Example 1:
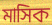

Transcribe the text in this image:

মাসিক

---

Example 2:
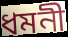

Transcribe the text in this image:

ধমনী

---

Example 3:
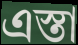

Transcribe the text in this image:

এস্তা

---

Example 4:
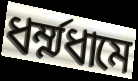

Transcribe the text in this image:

ধর্ম্মধামে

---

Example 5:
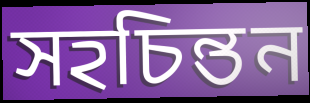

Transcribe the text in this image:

সহচিন্তন